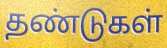
தண்டுகள்